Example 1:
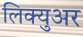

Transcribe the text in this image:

लिक्युअर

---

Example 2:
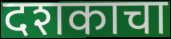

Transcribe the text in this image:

दशकाचा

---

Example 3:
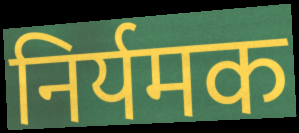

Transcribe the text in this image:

निर्यमक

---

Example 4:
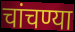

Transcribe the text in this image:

चांचण्या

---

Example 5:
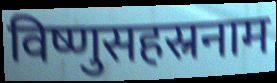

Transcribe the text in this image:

विष्णुसहस्रनाम